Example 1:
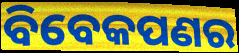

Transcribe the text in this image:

ବିବେକପଣର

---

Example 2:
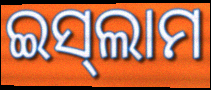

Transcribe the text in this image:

ଇସ୍‌ଲାମ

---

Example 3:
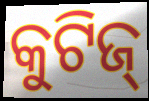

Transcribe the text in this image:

କୁଟିଜ୍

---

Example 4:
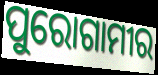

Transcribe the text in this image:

ପୁରୋଗାମୀର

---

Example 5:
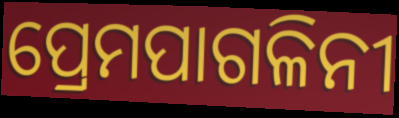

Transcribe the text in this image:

ପ୍ରେମପାଗଳିନୀ